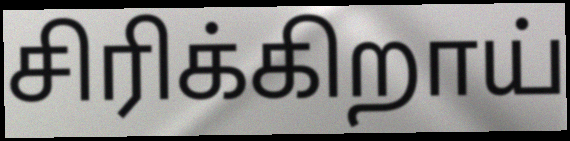
சிரிக்கிறாய்